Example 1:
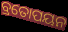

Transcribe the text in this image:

ବ୍ରତୋପୟନ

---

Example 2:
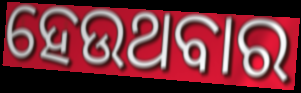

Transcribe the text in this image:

ହେଉଥବାର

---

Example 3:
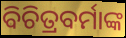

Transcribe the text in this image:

ବିଚିତ୍ରବର୍ମାଙ୍କ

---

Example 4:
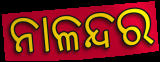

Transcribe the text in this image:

ନାଳନ୍ଦର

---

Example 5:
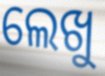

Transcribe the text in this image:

ଲେଖୁ